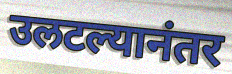
उलटल्यानंतर